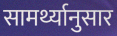
सामर्थ्यानुसार